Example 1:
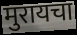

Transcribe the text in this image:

मुरायचा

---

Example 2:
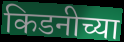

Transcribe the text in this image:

किडनीच्या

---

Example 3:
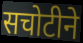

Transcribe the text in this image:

सचोटीने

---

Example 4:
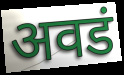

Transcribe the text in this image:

अवडं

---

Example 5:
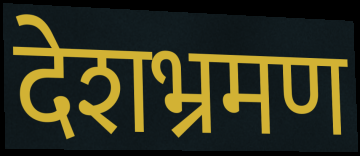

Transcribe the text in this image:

देशभ्रमण